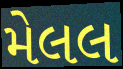
મેલલ